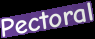
Pectoral